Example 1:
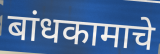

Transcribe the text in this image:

बांधकामाचे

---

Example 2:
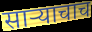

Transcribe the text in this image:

साऱ्याचाच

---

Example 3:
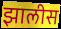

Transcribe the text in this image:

झालीस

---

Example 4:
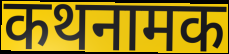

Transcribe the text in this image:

कथनामक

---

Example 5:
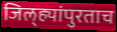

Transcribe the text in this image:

जिल्ह्यांपुरताच